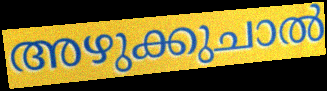
അഴുക്കുചാൽ